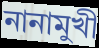
নানামুখী